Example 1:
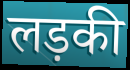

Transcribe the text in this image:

लड़की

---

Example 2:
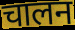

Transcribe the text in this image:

चालन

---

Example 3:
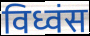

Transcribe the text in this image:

विध्वंस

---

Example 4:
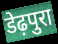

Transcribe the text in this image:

डेढ़पुरा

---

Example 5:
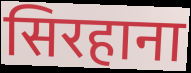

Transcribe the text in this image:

सिरहाना